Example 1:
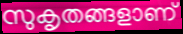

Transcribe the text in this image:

സുകൃതങ്ങളാണ്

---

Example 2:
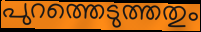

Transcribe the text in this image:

പുറത്തെടുത്തതും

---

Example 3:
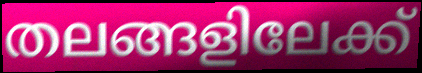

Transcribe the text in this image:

തലങ്ങളിലേക്ക്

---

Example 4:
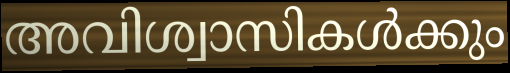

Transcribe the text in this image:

അവിശ്വാസികൾക്കും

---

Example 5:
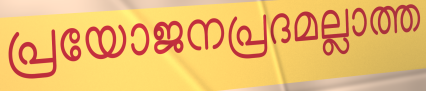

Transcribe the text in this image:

പ്രയോജനപ്രദമല്ലാത്ത